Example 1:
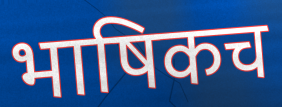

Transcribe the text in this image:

भाषिकच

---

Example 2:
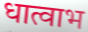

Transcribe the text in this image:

धात्वाभ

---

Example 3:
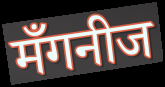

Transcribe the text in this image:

मँगनीज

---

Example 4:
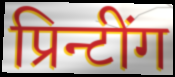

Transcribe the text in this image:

प्रिन्टींग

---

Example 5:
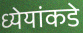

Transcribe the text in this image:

ध्येयांकडे